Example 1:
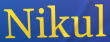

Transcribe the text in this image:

Nikul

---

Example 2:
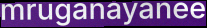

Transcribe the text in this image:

mruganayanee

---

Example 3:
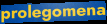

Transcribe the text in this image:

prolegomena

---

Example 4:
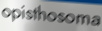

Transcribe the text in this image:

opisthosoma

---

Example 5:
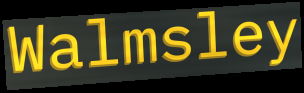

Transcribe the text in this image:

Walmsley